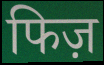
फिज़